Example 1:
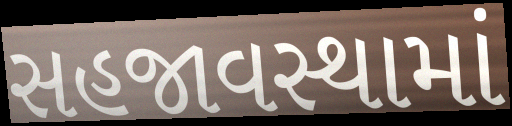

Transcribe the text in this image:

સહજાવસ્થામાં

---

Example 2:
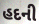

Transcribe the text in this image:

હદની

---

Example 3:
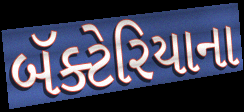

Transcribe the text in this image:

બૅક્ટેરિયાના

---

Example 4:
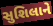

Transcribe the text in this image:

સુશિલાને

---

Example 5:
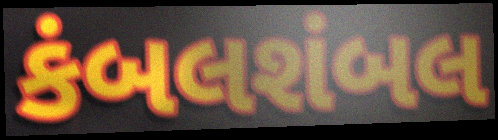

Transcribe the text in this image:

કંબલશંબલ